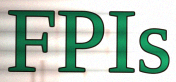
FPIs